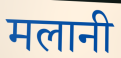
मलानी